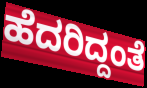
ಹೆದರಿದ್ದಂತೆ